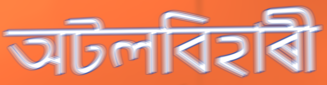
অটলবিহাৰী